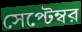
সেপ্টেম্বর